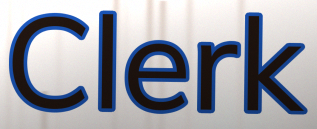
Clerk